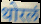
थोरलं